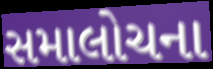
સમાલોચના